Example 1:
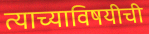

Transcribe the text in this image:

त्याच्याविषयीची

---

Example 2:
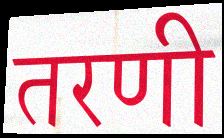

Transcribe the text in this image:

तरणी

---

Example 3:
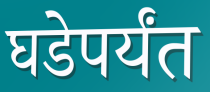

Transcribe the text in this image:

घडेपर्यंत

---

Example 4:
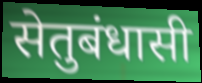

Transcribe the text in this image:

सेतुबंधासी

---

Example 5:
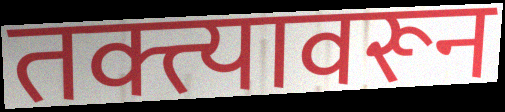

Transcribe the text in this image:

तक्त्यावरून